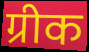
ग्रीक